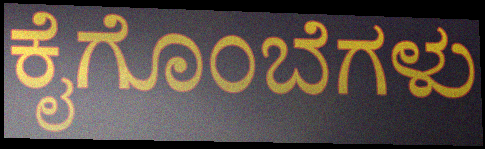
ಕೈಗೊಂಬೆಗಳು